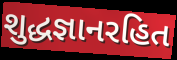
શુદ્ધજ્ઞાનરહિત